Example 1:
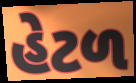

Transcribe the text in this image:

હેટળ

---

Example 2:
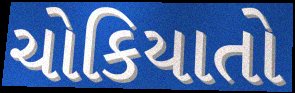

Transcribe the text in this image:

ચોકિયાતો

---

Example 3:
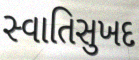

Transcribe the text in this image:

સ્વાતિસુખદ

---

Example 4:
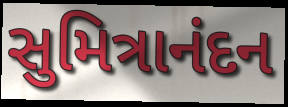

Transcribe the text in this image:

સુમિત્રાનંદન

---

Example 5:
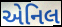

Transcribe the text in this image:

એનિલ